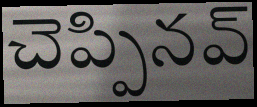
చెప్పినవ్